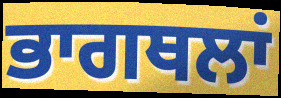
ਭਾਗਥਲਾਂ